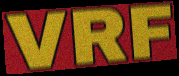
VRF